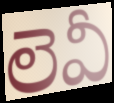
లెవీ